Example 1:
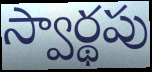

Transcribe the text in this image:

స్వార్థపు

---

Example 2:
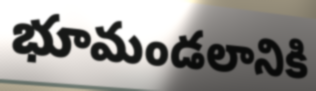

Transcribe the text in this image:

భూమండలానికి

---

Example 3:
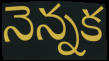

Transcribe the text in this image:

నెన్నక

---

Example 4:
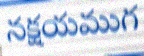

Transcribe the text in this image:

నక్షయముగ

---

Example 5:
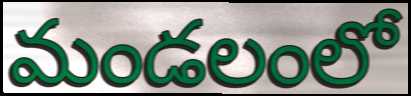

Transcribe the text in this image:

మండలంలో